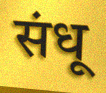
संधू